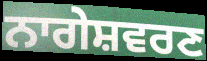
ਨਾਗੇਸ਼ਵਰਣ